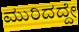
ಮುರಿದದ್ದೇ